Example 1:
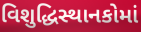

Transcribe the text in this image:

વિશુદ્ધિસ્થાનકોમાં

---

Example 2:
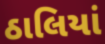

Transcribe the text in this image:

ઠાલિયાં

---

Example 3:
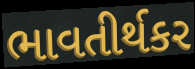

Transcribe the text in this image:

ભાવતીર્થકર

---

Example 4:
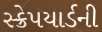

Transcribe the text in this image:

સ્ક્રેપયાર્ડની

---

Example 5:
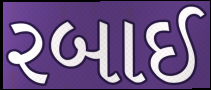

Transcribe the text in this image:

રબાઈ